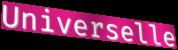
Universelle